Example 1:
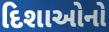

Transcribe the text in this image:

દિશાઓનો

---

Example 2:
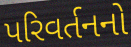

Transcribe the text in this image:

પરિવર્તનનો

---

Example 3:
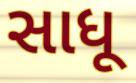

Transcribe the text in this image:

સાધૂ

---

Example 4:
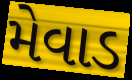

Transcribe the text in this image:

મેવાડ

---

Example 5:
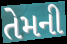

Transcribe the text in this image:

તેમની